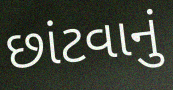
છાંટવાનું